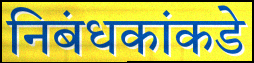
निबंधकांकडे